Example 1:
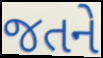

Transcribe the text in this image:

જતને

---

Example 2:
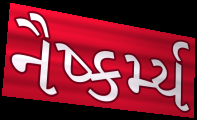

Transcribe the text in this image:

નૈષ્કર્મ્ય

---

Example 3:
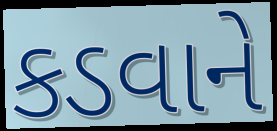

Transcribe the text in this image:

કડવાને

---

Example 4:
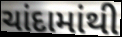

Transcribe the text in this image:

ચાંદામાંથી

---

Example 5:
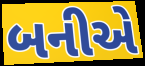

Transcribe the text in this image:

બનીએ